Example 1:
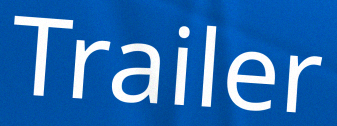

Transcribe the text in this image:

Trailer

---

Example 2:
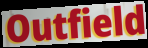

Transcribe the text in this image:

Outfield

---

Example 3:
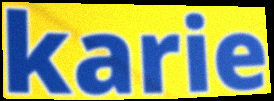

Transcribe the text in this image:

karie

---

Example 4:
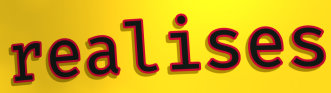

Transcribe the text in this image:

realises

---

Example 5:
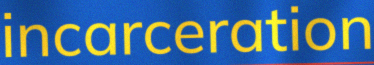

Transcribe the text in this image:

incarceration